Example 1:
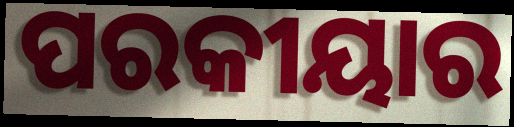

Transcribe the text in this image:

ପରକୀୟାର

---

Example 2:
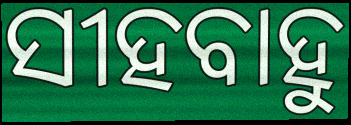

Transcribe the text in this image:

ସୀହବାହୁ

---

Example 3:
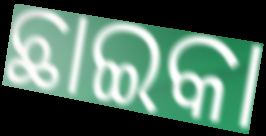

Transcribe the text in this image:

ଛାଇକା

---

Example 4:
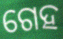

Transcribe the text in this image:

ଗେହ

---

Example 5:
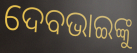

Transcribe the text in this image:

ଦେବଭାଇଙ୍କୁ